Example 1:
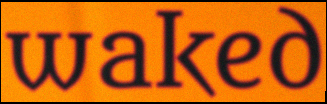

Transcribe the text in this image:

waked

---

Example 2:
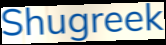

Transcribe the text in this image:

Shugreek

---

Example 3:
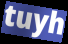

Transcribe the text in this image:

tuyh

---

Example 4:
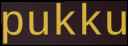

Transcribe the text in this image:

pukku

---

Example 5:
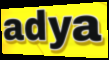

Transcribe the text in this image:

adya